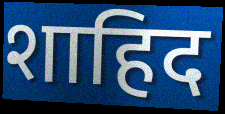
शाहिद